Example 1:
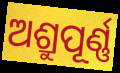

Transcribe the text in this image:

ଅଶ୍ରୁପୂର୍ଣ୍ଣ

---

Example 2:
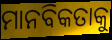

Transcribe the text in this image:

ମାନବିକତାକୁ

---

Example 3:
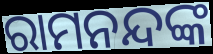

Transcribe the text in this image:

ରାମନନ୍ଦଙ୍କ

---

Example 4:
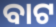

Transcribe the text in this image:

ବାଟ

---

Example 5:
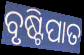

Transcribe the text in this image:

ବୃଷ୍ଟିପାତ